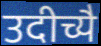
उदीच्यै